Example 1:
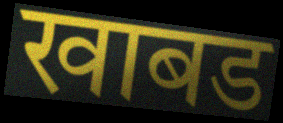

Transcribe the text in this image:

खाबड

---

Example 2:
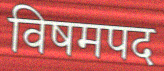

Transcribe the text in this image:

विषमपद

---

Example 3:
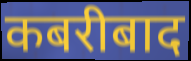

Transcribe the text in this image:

कबरीबाद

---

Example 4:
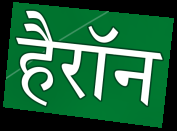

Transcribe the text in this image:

हैरॉन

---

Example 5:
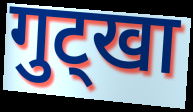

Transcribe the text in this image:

गुट्खा